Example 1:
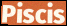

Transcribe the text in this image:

Piscis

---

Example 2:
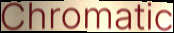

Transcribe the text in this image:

Chromatic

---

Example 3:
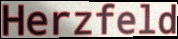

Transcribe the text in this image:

Herzfeld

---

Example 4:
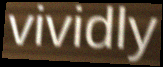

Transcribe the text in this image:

vividly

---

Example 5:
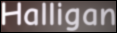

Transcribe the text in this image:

Halligan